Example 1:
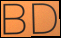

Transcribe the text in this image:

BD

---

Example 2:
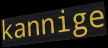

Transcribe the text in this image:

kannige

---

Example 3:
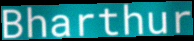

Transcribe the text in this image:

Bharthur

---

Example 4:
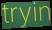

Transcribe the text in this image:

tryin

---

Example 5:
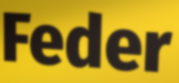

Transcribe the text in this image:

Feder